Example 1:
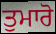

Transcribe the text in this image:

ਤੁਮਾਰੋ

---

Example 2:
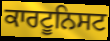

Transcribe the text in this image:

ਕਾਰਟੂਨਿਸਟ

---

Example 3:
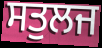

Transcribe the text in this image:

ਸਤੁਲਜ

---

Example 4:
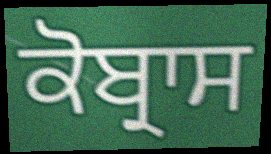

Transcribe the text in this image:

ਕੋਬ੍ਰਾਸ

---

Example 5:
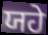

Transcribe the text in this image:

ਯਹੇ